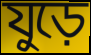
যুড়ে